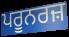
ਪਰੂਨਰਜ਼